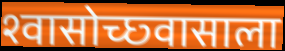
श्वासोच्छ्वासाला